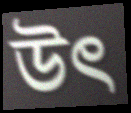
উৎ